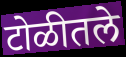
टोळीतले